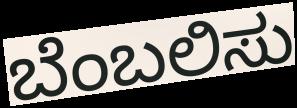
ಬೆಂಬಲಿಸು